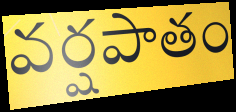
వర్షపాతం